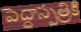
పెద్దాస్పత్రికి